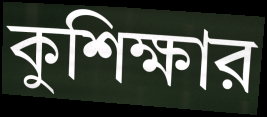
কুশিক্ষার